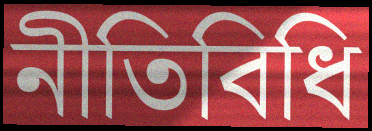
নীতিবিধি